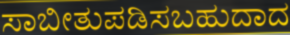
ಸಾಬೀತುಪಡಿಸಬಹುದಾದ